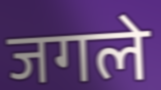
जगले